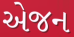
એજન